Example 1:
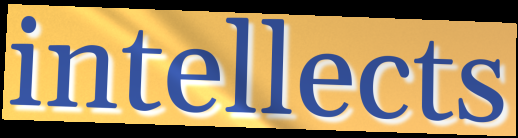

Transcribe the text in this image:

intellects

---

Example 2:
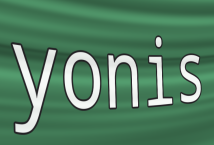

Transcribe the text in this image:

yonis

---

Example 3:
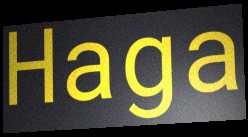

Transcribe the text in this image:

Haga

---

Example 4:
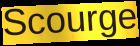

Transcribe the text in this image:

Scourge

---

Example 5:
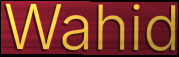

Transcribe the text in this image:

Wahid